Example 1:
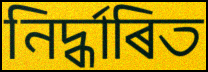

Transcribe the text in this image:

নিৰ্দ্ধাৰিত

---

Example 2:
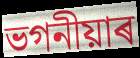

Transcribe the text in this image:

ভগনীয়াৰ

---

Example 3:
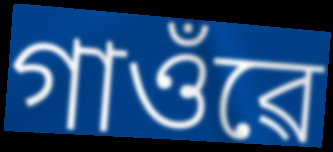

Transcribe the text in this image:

গাওঁৱে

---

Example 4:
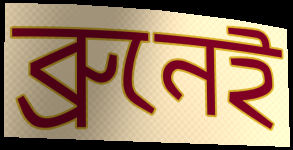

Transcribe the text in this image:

ব্ৰুনেই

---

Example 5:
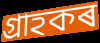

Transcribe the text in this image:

গ্ৰাহকৰ